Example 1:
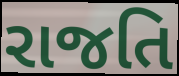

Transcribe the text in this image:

રાજતિ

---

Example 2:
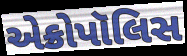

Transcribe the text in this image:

એક્રોપૉલિસ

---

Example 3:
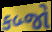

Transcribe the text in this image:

કબ્જો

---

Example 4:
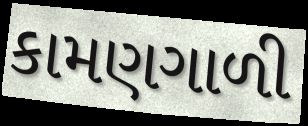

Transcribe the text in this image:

કામણગાળી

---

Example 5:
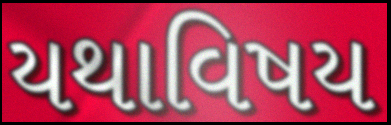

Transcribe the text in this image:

યથાવિષય